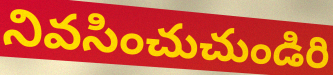
నివసించుచుండిరి